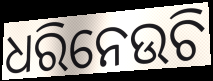
ଧରିନେଉଚି